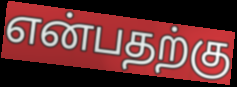
என்பதற்கு